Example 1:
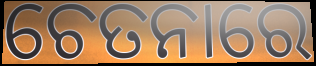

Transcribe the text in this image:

ଚେତନାରେ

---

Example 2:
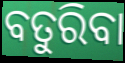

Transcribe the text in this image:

ବତୁରିବା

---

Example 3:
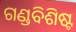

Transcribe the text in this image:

ଗଣ୍ଡବିଶିଷ୍ଟ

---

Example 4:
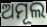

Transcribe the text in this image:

ଅମୂଲ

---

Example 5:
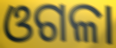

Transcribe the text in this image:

ଓଗଳା